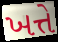
ખત્તે